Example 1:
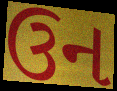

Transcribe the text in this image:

ઉન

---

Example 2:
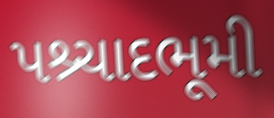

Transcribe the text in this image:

પશ્ર્ચાદભૂમી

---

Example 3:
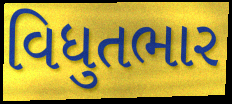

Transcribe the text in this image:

વિધુતભાર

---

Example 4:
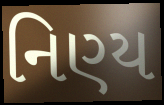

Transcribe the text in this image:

નિણ્ય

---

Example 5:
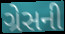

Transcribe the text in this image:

ગ્રેસની